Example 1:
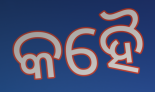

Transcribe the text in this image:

କହୈ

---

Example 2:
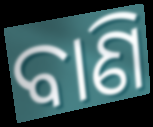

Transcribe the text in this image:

ବାଣି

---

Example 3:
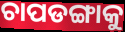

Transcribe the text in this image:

ଚାପଡଙ୍ଗାକୁ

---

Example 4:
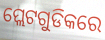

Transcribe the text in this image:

ପ୍ଲେଟଗୁଡିକରେ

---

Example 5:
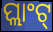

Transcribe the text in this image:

ପ୍ଲାଂଟ୍